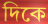
দিকে